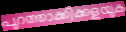
പുറത്താക്കിക്കളയുക